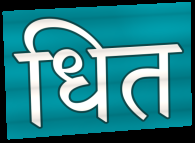
धित